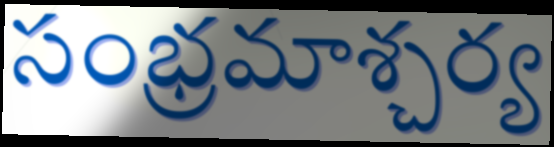
సంభ్రమాశ్చర్య